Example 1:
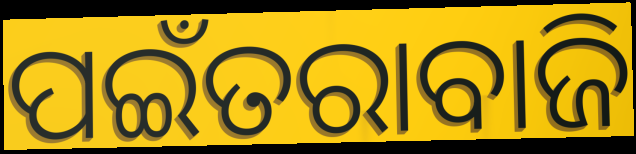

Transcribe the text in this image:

ପଇଁତରାବାଜି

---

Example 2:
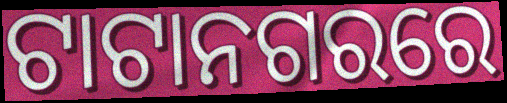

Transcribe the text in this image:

ଟାଟାନଗରରେ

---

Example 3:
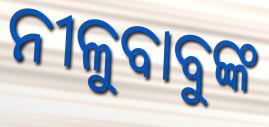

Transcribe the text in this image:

ନୀଳୁବାବୁଙ୍କ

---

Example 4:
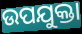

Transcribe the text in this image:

ଉପଯୁକ୍ତା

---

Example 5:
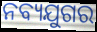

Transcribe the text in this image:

ନବ୍ୟଯୁଗର